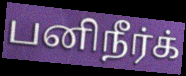
பனிநீர்க்